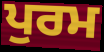
ਪੁਰਮ